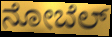
ನೋಬೆಲ್